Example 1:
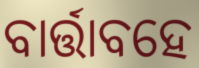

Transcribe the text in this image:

ବାର୍ତ୍ତାବହେ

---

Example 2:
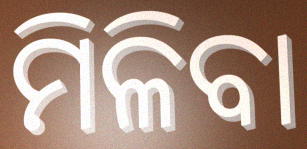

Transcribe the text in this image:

ମିଳିବା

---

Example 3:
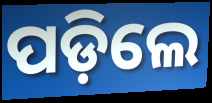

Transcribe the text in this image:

ପଡ଼ିଲେ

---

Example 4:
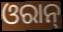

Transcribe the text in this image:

ଓରାନ୍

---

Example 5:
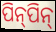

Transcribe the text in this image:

ପିନ୍‍ପିନ୍